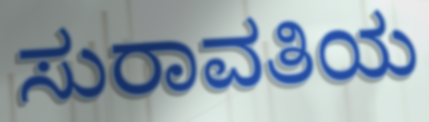
ಸುರಾವತಿಯ